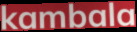
kambala